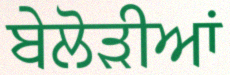
ਬੇਲੋੜੀਆਂ